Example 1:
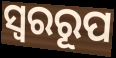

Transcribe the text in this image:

ସ୍ୱରରୂପ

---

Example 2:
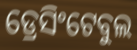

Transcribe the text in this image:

ଡ୍ରେସିଂଟେବୁଲ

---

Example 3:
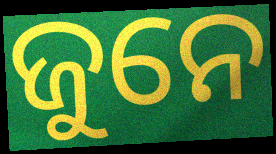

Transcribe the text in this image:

ଜୁନେ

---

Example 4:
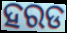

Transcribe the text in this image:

ହରଡ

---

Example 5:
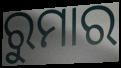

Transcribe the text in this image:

ରୁମାର